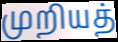
முறியத்